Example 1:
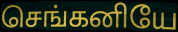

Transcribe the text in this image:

செங்கனியே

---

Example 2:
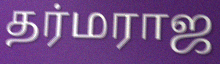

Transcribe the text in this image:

தர்மராஜ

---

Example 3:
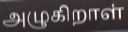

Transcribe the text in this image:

அழுகிறாள்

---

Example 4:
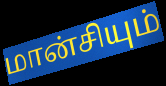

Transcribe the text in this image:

மான்சியும்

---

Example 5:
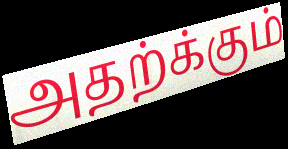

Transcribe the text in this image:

அதற்க்கும்